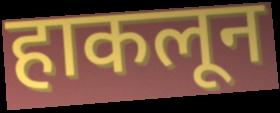
हाकलून